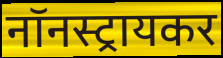
नॉनस्ट्रायकर